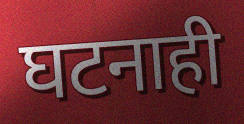
घटनाही